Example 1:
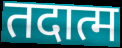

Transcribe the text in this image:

तदात्म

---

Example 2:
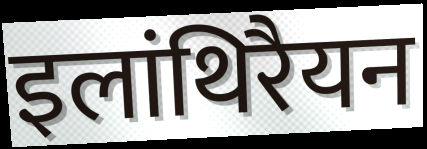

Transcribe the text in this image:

इलांथिरैयन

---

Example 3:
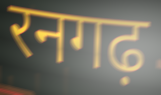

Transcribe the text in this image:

रनगढ़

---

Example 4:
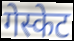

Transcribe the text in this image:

गेस्केट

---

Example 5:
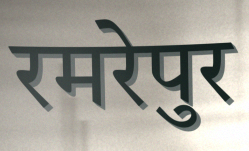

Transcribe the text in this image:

रमरेपुर